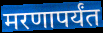
मरणापर्यंत